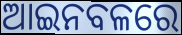
ଆଇନବଳରେ